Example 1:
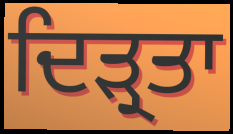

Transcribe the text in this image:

ਦਿੜ੍ਰਤਾ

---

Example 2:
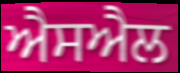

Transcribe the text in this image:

ਐਸਐਲ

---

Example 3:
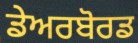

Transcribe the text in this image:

ਡੇਅਰਬੋਰਡ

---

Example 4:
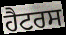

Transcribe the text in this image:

ਹੈਟਰਸ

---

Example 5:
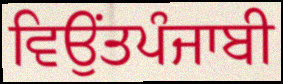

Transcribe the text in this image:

ਵਿਉਂਤਪੰਜਾਬੀ